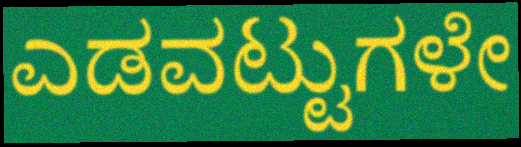
ಎಡವಟ್ಟುಗಳೇ